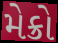
મેક્રો